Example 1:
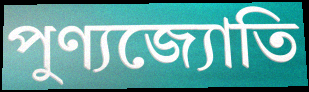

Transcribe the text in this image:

পুণ্যজ্যোতি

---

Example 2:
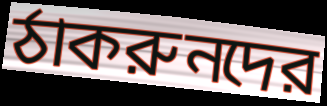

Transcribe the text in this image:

ঠাকরুনদের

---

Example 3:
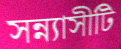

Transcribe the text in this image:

সন্ন্যাসীটি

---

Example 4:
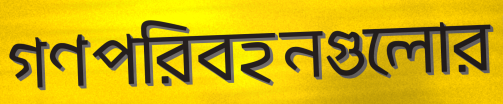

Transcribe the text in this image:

গণপরিবহনগুলোর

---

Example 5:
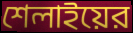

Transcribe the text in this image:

শেলাইয়ের